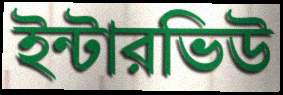
ইন্টারভিউ